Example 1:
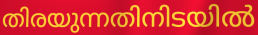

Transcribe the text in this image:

തിരയുന്നതിനിടയിൽ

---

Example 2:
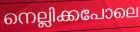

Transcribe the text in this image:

നെല്ലിക്കപോലെ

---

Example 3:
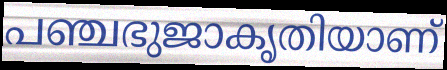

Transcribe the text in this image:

പഞ്ചഭുജാകൃതിയാണ്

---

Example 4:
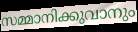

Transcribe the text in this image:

സമ്മാനിക്കുവാനും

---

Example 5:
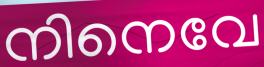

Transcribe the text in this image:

നിനെവേ